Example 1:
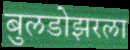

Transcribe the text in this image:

बुलडोझरला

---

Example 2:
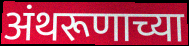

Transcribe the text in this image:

अंथरूणाच्या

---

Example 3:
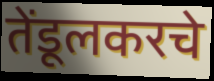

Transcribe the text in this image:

तेंडूलकरचे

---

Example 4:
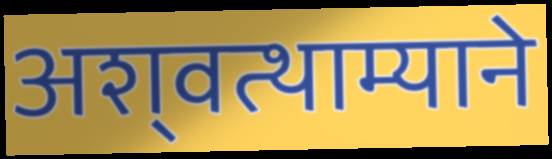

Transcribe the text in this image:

अश्वत्थाम्याने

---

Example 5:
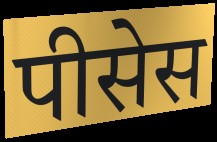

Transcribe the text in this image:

पीसेस